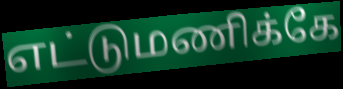
எட்டுமணிக்கே